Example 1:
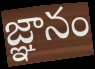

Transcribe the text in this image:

జ్ఞానం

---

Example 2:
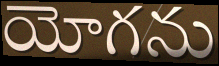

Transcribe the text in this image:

యోగను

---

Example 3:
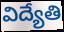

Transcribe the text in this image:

విద్యేతి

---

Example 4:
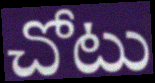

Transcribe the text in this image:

చోటు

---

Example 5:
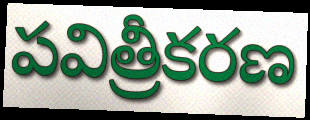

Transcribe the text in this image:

పవిత్రీకరణ